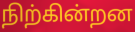
நிற்கின்றன